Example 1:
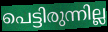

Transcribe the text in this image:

പെട്ടിരുന്നില്ല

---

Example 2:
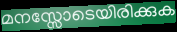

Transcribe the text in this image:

മനസ്സോടെയിരിക്കുക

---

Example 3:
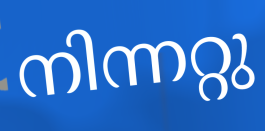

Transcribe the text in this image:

നിന്നറ്റു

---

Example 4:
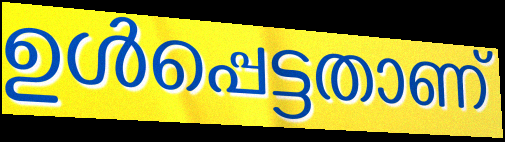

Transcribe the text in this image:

ഉൾപ്പെട്ടതാണ്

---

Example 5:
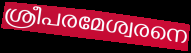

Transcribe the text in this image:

ശ്രീപരമേശ്വരനെ